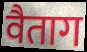
वैताग